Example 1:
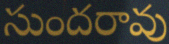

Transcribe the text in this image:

సుందరావు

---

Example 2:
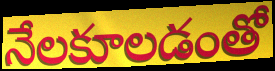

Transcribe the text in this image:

నేలకూలడంతో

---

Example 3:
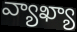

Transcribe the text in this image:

వ్యాఖ్యా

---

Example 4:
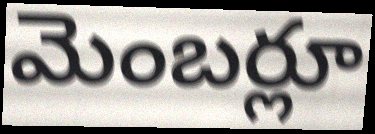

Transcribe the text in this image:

మెంబర్లూ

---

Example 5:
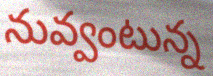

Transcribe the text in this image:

నువ్వంటున్న